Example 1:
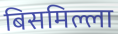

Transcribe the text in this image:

बिसमिल्ला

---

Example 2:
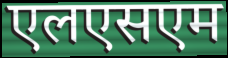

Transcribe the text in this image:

एलएसएम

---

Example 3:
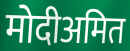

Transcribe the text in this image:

मोदीअमित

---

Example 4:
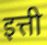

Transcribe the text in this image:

इत्ती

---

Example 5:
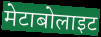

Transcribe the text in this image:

मेटाबोलाइट